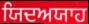
ਯਿਦਅਯਾਹ